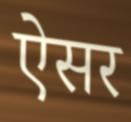
ऐसर